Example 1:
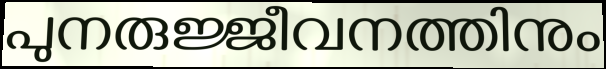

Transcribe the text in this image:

പുനരുജ്ജീവനത്തിനും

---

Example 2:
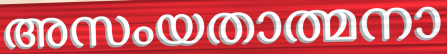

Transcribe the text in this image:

അസംയതാത്മനാ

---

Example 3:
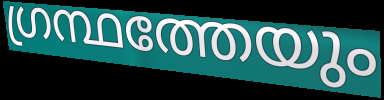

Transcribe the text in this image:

ഗ്രന്ഥത്തേയും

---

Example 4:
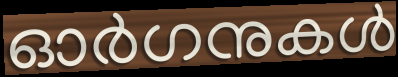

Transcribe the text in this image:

ഓർഗനുകൾ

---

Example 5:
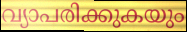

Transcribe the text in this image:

വ്യാപരിക്കുകയും